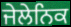
ਜੇਲੇਨਿਕ